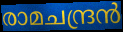
രാമചന്ദ്രൻ